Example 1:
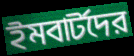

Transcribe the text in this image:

ইমবার্টদের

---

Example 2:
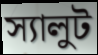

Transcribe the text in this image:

স্যালুট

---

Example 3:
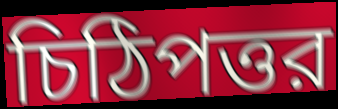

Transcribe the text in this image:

চিঠিপত্তর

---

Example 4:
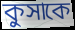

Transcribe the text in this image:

কুসাকে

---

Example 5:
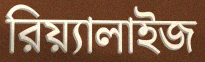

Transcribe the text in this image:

রিয়্যালাইজ